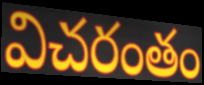
విచరంతం